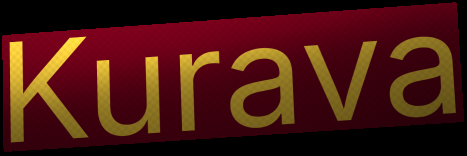
Kurava